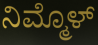
ನಿಮ್ಮೊಳ್